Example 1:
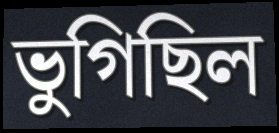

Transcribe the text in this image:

ভুগিছিল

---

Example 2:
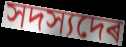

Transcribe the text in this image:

সদস্যদেৰ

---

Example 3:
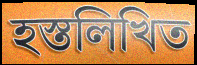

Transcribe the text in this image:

হস্তলিখিত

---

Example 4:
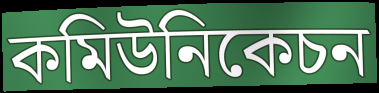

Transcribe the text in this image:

কমিউনিকেচন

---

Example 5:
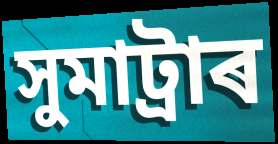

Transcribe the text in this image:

সুমাট্ৰাৰ